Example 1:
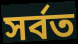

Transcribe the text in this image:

সর্বত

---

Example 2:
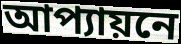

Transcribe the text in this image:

আপ্যায়নে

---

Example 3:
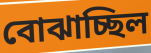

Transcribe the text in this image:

বোঝাচ্ছিল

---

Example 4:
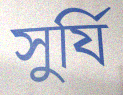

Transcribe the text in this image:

সুর্যি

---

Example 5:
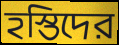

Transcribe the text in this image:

হস্তিদের